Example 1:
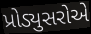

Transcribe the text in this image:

પ્રોડ્યુસરોએ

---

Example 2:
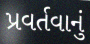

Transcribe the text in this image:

પ્રવર્તવાનું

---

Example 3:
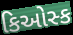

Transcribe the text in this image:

કિઓસ્ક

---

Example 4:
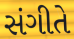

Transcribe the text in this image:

સંગીતે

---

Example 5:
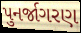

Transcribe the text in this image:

પુનર્જાગરણ